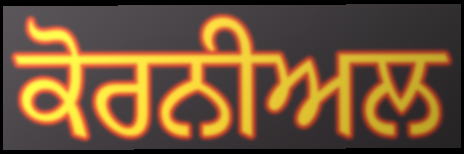
ਕੋਰਨੀਅਲ